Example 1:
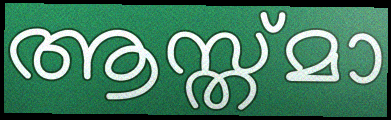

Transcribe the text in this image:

ആസ്ത്മാ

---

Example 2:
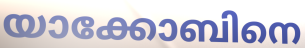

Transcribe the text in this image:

യാക്കോബിനെ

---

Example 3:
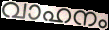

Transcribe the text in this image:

വാഹനം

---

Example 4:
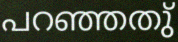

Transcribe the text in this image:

പറഞ്ഞതു്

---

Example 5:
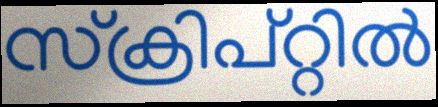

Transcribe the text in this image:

സ്ക്രിപ്റ്റിൽ